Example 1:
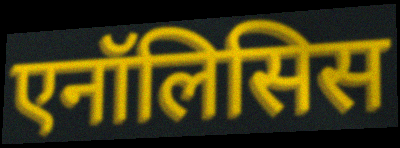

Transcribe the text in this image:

एनॉलिसिस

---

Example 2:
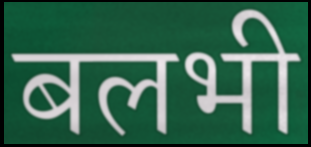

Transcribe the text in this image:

बलभी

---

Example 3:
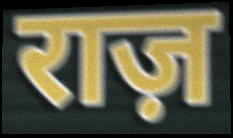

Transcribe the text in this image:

राज़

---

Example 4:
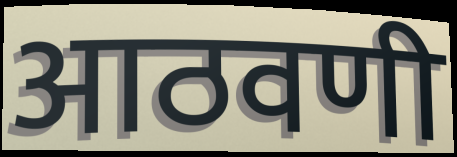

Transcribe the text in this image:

आठवणी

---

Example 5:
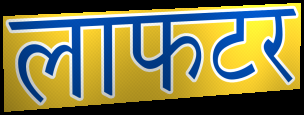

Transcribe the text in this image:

लाफटर